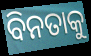
ବିନତାକୁ